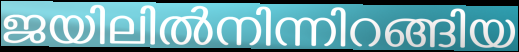
ജയിലിൽനിന്നിറങ്ങിയ